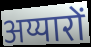
अय्यारों